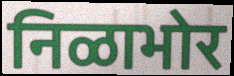
निळाभोर